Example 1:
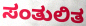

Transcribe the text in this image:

ಸಂತುಲಿತ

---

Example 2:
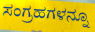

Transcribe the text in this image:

ಸಂಗ್ರಹಗಳನ್ನೂ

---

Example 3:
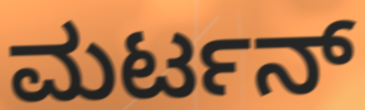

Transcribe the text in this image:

ಮರ್ಟನ್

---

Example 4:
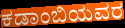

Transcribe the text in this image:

ಕಡಾಂಬಿಯವರ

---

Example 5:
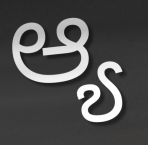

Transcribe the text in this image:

ಆ್ಯ